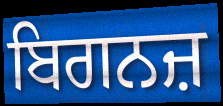
ਬਿਗਨਜ਼